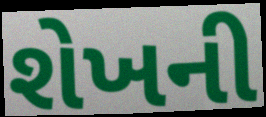
શેખની